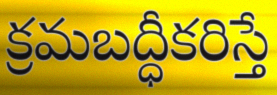
క్రమబద్ధీకరిస్తే